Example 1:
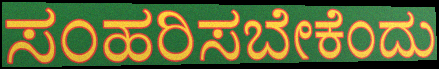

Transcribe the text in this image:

ಸಂಹರಿಸಬೇಕೆಂದು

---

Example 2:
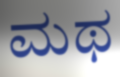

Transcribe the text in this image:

ಮಥ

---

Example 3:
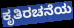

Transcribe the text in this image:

ಕೃತಿರಚನೆಯ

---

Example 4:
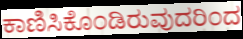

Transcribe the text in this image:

ಕಾಣಿಸಿಕೊಂಡಿರುವುದರಿಂದ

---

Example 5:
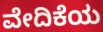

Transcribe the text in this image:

ವೇದಿಕೆಯ